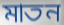
মাতন